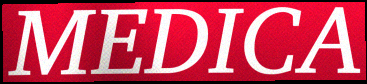
MEDICA